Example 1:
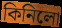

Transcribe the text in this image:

কিনিলো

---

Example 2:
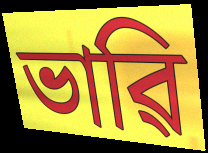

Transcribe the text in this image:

ভাৱি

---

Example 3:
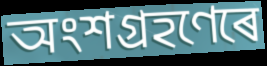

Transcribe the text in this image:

অংশগ্ৰহণেৰে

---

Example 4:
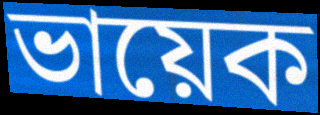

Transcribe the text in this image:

ভায়েক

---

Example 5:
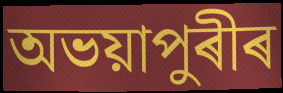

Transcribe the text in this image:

অভয়াপুৰীৰ